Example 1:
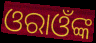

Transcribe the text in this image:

ଓରାଓଁଙ୍କ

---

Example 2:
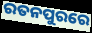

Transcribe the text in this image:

ରତନପୁରରେ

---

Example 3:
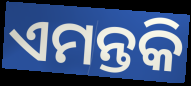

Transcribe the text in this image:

ଏମନ୍ତକି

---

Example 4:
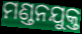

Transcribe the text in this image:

ମଣ୍ଡନଯୁକ୍ତ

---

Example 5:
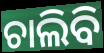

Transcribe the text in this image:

ଚାଲିବି